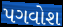
પગવોશ